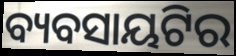
ବ୍ୟବସାୟଟିର